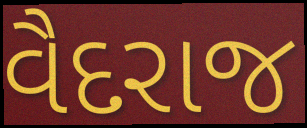
વૈદરાજ